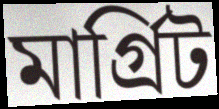
মাৰ্গ্ৰিট